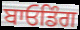
ਬਾਓਡਿੰਗ